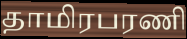
தாமிரபரணி